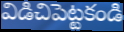
విడిచిపెట్టకండి